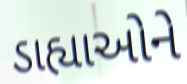
ડાહ્યાઓને